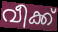
വീക്ക്